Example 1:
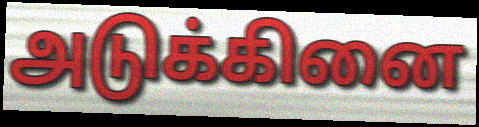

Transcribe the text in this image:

அடுக்கினை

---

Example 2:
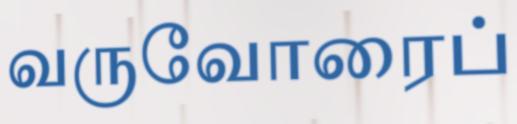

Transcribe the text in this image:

வருவோரைப்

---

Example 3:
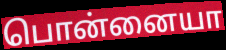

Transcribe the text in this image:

பொன்னையா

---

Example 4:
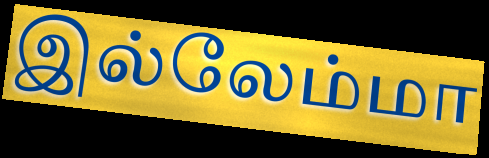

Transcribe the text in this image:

இல்லேம்மா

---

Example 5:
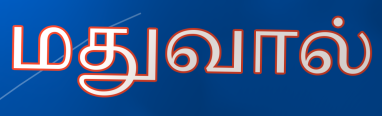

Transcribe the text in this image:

மதுவால்